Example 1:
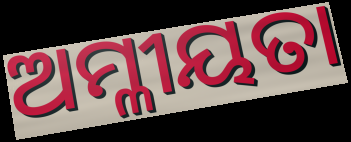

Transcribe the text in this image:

ଅମ୍ଳୀୟତା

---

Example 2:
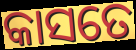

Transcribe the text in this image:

କାସତେ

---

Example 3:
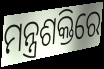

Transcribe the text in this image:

ମନ୍ତ୍ରଶକ୍ତିରେ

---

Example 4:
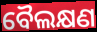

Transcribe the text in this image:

ବୈଲକ୍ଷଣ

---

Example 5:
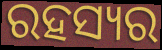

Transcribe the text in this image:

ରହସ୍ୟର